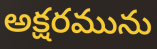
అక్షరమును